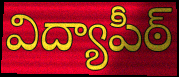
విద్యాపీఠ్